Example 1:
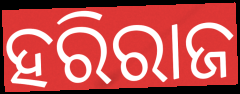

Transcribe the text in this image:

ହରିରାଜ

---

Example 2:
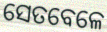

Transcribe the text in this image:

ସେତବେଳେ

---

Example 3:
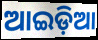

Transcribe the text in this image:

ଆଇଡ଼ିଆ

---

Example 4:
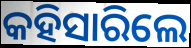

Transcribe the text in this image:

କହିସାରିଲେ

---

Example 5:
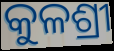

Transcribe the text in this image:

କୁଳଶ୍ରୀ